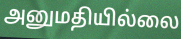
அனுமதியில்லை